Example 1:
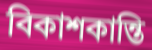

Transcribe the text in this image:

বিকাশকান্তি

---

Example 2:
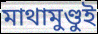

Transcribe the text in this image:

মাথামুণ্ডুই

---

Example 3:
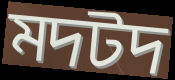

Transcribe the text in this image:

মদটদ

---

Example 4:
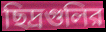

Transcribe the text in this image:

ছিদ্রগুলির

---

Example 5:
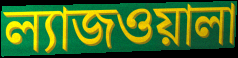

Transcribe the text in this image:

ল্যাজওয়ালা